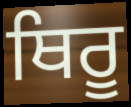
ਥਿਰੂ